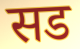
सड